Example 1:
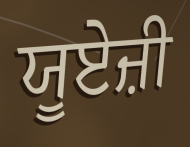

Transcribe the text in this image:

ਯੂਏਜ਼ੀ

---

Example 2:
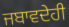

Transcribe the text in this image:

ਜਬਾਵਦੇਹੀ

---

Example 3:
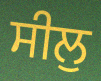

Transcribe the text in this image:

ਸੀਲੁ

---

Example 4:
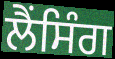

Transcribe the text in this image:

ਲੈਂਸਿੰਗ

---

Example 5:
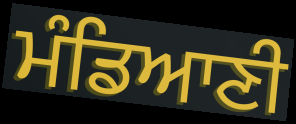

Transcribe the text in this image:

ਮੰਡਿਆਣੀ